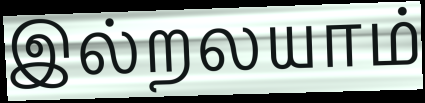
இல்றலயாம்